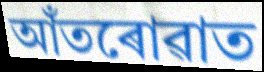
আঁতৰোৱাত